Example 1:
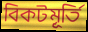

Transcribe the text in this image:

বিকটমূর্তি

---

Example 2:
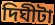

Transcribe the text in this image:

দিঘীটা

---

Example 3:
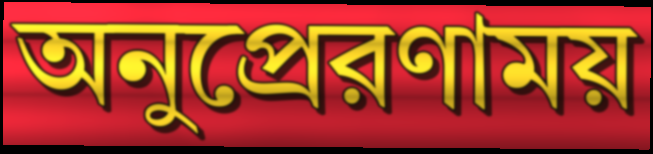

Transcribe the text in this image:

অনুপ্রেরণাময়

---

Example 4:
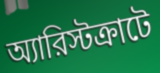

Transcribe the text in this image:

অ্যারিস্টক্রাটে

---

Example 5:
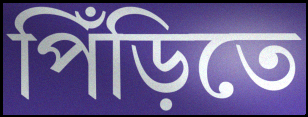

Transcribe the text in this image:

পিঁড়িতে